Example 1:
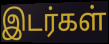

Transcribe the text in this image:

இடர்கள்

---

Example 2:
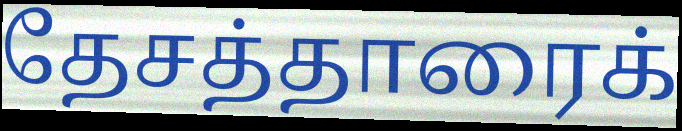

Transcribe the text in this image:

தேசத்தாரைக்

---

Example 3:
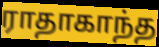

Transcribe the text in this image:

ராதாகாந்த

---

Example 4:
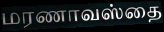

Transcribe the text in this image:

மரணாவஸ்தை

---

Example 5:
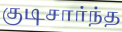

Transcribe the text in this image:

குடிசார்ந்த